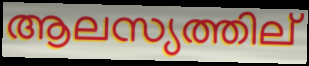
ആലസ്യത്തില്